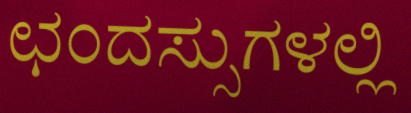
ಛಂದಸ್ಸುಗಳಲ್ಲಿ